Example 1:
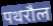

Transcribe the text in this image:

पथरौल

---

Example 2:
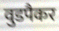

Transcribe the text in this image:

वुडपैकर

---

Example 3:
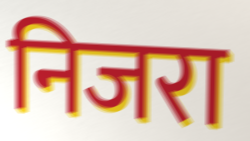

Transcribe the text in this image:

निजरा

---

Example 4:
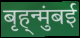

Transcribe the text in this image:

बृह्न्मुंबई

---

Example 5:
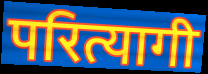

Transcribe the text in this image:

परित्यागी